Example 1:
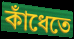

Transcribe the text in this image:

কাঁধেতে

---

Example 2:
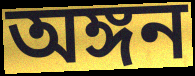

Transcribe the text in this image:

অঙ্গন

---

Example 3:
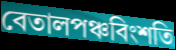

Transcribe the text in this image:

বেতালপঞ্চবিংশতি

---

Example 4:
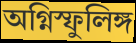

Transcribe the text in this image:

অগ্নিস্ফুলিঙ্গ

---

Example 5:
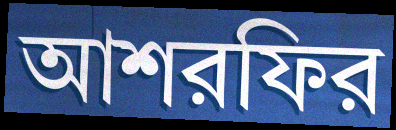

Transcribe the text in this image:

আশরফির